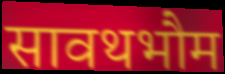
सावथभौम